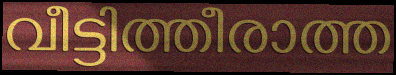
വീട്ടിത്തീരാത്ത